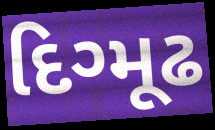
દિગ્મૂઢ